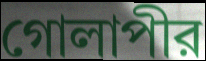
গোলাপীর